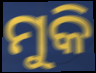
ମୁକି